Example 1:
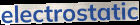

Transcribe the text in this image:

electrostatic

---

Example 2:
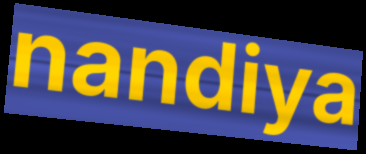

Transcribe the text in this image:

nandiya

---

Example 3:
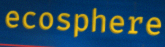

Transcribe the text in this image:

ecosphere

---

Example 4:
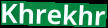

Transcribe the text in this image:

Khrekhr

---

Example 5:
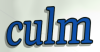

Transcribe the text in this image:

culm